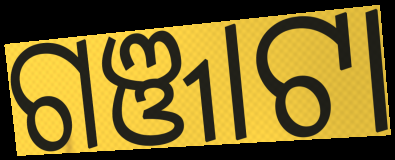
ଗଞ୍ଜାଟା